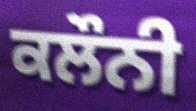
ਕਲੌਨੀ